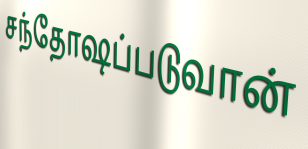
சந்தோஷப்படுவான்